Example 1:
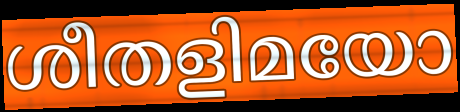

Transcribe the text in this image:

ശീതളിമയോ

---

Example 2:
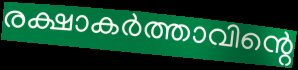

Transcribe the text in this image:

രക്ഷാകർത്താവിന്റെ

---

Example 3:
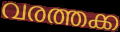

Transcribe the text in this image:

വരത്തക്ക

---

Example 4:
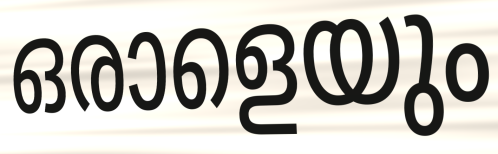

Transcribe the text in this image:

ഒരാളെയും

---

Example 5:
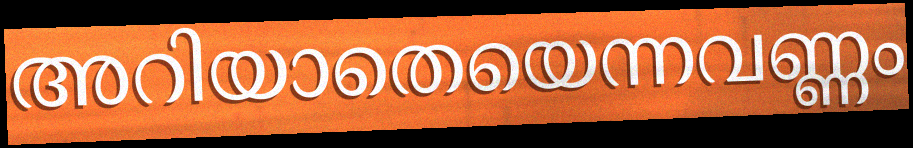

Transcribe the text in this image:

അറിയാതെയെന്നവണ്ണം